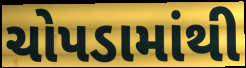
ચોપડામાંથી